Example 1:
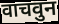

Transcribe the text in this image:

वाचवुन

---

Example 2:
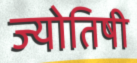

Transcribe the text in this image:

ज्योतिषी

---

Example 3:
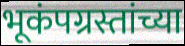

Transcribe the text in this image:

भूकंपग्रस्तांच्या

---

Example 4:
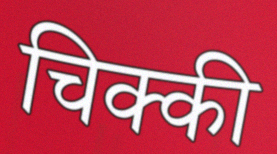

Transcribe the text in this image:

चिक्की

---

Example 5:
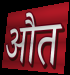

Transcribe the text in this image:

औत